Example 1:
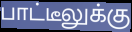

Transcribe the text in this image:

பாட்டீலுக்கு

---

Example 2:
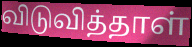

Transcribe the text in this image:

விடுவித்தாள்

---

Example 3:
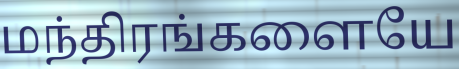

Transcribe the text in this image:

மந்திரங்களையே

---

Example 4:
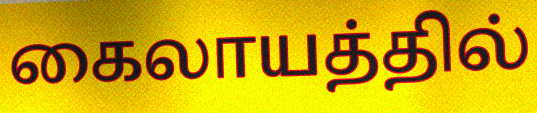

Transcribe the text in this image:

கைலாயத்தில்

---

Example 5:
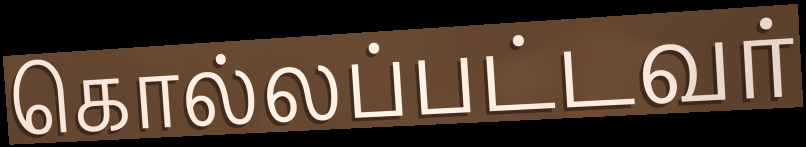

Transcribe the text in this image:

கொல்லப்பட்டவர்